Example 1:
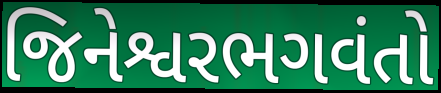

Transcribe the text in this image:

જિનેશ્વરભગવંતો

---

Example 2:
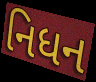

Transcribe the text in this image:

નિધન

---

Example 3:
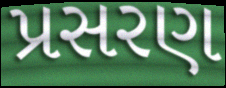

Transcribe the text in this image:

પ્રસરણ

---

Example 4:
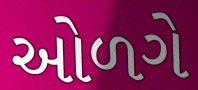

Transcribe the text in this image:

ઓળગે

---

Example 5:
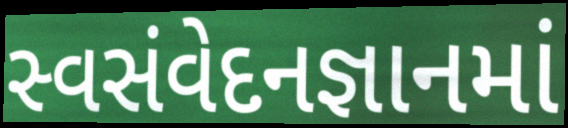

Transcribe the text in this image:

સ્વસંવેદનજ્ઞાનમાં